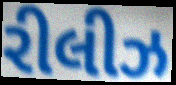
રીલીઝ